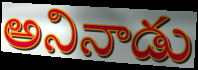
అనినాడు